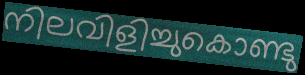
നിലവിളിച്ചുകൊണ്ടു